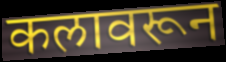
कलावरून